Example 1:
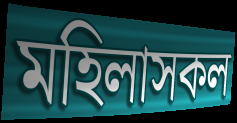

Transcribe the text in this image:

মহিলাসকল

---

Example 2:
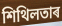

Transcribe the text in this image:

শিথিলতাৰ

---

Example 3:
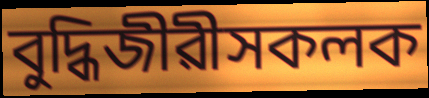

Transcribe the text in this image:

বুদ্ধিজীৱীসকলক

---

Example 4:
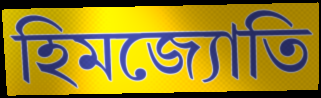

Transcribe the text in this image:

হিমজ্যোতি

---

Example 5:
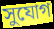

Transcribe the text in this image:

সুযোগ